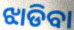
ଝାଡିବା